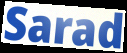
Sarad